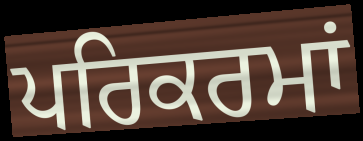
ਪਰਿਕਰਮਾਂ